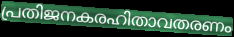
പ്രതിജനകരഹിതാവതരണം